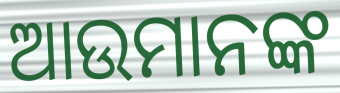
ଆଉମାନଙ୍କ